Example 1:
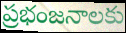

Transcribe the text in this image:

ప్రభంజనాలకు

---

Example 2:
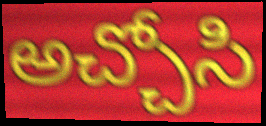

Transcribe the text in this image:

అచ్చోసి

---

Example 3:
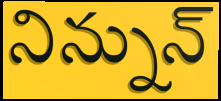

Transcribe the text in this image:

నిన్నున్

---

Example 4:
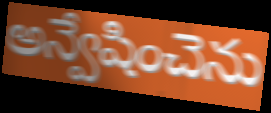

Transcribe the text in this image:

అన్వేషించెను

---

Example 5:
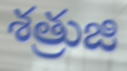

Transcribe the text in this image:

శత్రుజి